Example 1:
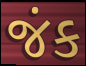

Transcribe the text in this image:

જંક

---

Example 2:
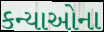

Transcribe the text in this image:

કન્યાઓના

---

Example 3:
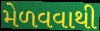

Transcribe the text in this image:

મેળવવાથી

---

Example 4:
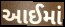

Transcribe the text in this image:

આઈમાં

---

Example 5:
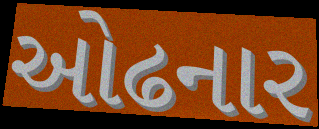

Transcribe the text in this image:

ઓઢનાર